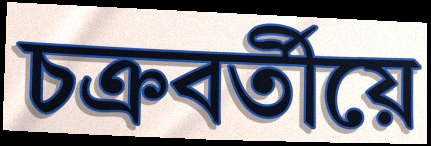
চক্ৰবৰ্তীয়ে